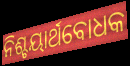
ନିଶ୍ଚୟାର୍ଥବୋଧକ